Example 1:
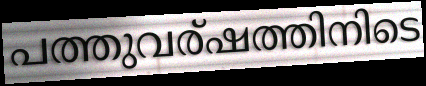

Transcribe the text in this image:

പത്തുവര്ഷത്തിനിടെ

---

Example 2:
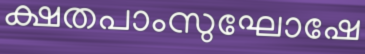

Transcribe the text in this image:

ക്ഷതപാംസുഘോഷേ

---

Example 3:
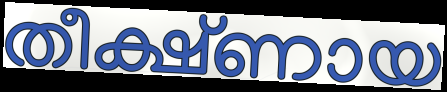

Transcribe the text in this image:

തീക്ഷ്ണായ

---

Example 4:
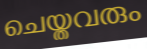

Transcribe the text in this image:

ചെയ്തവരും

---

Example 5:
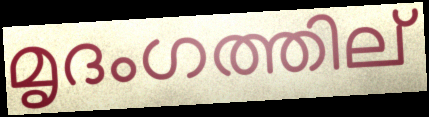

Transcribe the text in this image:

മൃദംഗത്തില്